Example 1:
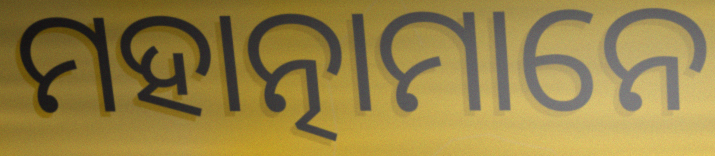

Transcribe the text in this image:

ମହାତ୍ନାମାନେ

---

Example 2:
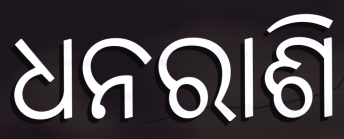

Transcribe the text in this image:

ଧନରାଶି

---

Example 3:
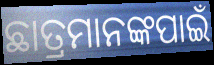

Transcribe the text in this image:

ଛାତ୍ରମାନଙ୍କପାଇଁ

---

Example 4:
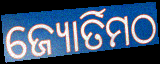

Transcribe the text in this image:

ଜ୍ୟୋର୍ତିମଠ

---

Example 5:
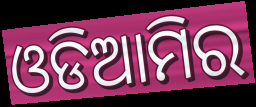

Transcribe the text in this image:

ଓଡିଆମିର